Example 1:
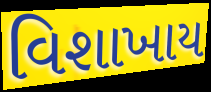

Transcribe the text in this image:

વિશાખાય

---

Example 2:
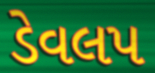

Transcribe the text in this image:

ડેવલપ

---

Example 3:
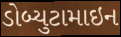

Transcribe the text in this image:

ડોબ્યુટામાઇન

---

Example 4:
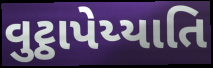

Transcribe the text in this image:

વુટ્ઠાપેય્યાતિ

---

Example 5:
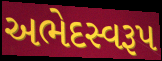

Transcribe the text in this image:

અભેદસ્વરૂપ